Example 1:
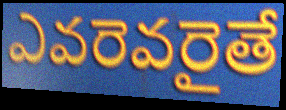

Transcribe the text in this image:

ఎవరెవరైతే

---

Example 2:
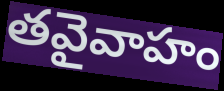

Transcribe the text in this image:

తవైవాహం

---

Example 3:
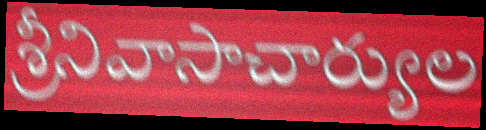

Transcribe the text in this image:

శ్రీనివాసాచార్యుల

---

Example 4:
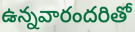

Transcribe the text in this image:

ఉన్నవారందరితో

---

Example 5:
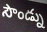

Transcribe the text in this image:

సౌండ్ను